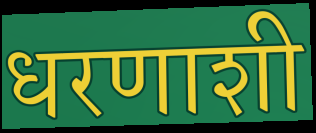
धरणाशी